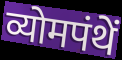
व्योमपंथें